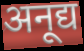
अनूद्य